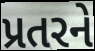
પ્રતરને